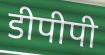
डीपीपी